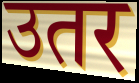
उतर